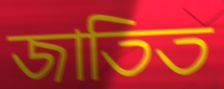
জাতিত